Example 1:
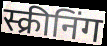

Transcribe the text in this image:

स्क्रीनिंग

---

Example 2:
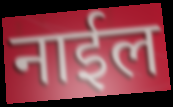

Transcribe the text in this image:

नाईल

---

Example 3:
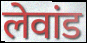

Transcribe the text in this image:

लेवांड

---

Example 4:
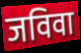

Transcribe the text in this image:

जविवा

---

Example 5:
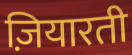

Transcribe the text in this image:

ज़ियारती